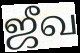
ஜீவ